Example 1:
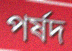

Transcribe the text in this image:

পর্ষদ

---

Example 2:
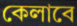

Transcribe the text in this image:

কেলাবে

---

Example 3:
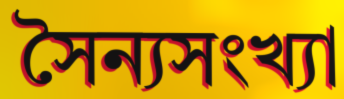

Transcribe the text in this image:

সৈন্যসংখ্যা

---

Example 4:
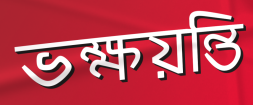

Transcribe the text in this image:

ভক্ষয়ন্তি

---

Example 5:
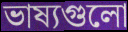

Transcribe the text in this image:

ভাষ্যগুলো